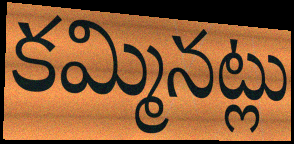
కమ్మినట్లు